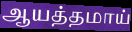
ஆயத்தமாய்